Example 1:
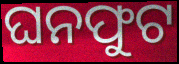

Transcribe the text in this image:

ଘନଫୁଟ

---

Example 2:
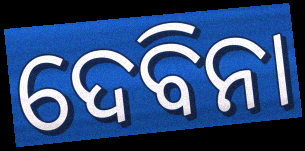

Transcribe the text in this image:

ଦେବିନା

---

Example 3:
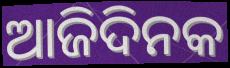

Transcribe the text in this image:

ଆଜିଦିନକ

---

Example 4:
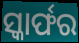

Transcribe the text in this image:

ସ୍କାର୍ଫର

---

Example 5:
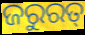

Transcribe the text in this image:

ଜରୁରତ୍